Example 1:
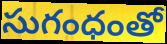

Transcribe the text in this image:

సుగంధంతో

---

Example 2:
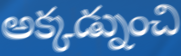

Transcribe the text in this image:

అక్కడ్నుంచి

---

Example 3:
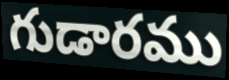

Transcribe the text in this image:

గుడారము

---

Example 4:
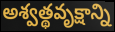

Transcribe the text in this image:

అశ్వత్థవృక్షాన్ని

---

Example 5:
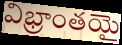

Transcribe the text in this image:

విభ్రాంతయై